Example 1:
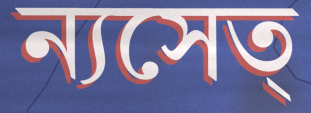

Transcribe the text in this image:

ন্যসেত্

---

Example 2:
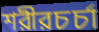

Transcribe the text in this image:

শরীরচর্চা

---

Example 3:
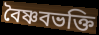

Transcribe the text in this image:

বৈষ্ণবভক্তি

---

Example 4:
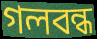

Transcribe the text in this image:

গলবন্ধ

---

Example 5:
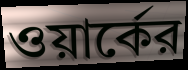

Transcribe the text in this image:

ওয়ার্কের